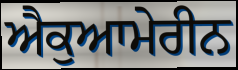
ਐਕੁਆਮੇਰੀਨ